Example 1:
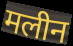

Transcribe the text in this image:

मलीन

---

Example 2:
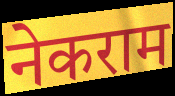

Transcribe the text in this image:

नेकराम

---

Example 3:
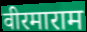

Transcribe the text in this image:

वीरमाराम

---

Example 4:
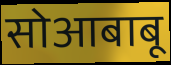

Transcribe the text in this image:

सोआबाबू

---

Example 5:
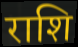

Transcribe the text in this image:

राशि